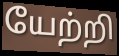
யேற்றி